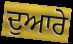
ਦੁਆਰੇ